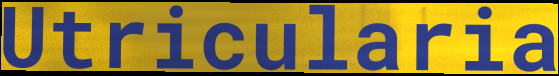
Utricularia